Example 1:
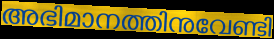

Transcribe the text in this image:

അഭിമാനത്തിനുവേണ്ടി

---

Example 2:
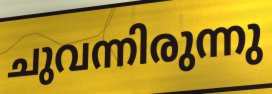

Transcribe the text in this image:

ചുവന്നിരുന്നു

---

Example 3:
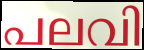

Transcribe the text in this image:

പലവി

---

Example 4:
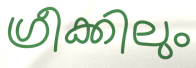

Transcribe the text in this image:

ഗ്രീക്കിലും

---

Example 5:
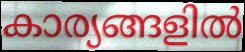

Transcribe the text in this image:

കാര്യങ്ങളിൽ